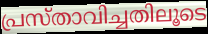
പ്രസ്താവിച്ചതിലൂടെ